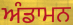
ਅੰਡਾਮਨ